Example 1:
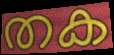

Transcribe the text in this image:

തക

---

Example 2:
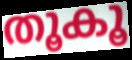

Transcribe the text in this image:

തൂകൂ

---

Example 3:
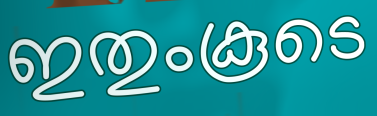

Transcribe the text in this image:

ഇതുംകൂടെ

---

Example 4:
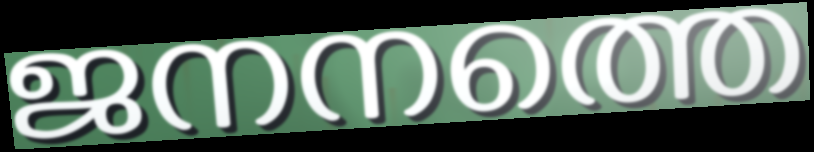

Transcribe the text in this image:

ജനനത്തെ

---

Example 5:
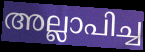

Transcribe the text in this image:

അല്ലാപിച്ച